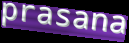
prasana